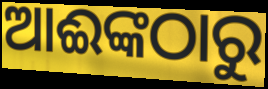
ଆଈଙ୍କଠାରୁ